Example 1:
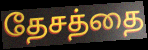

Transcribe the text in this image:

தேசத்தை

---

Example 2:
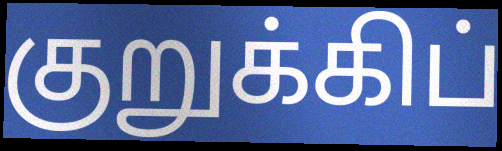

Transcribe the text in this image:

குறுக்கிப்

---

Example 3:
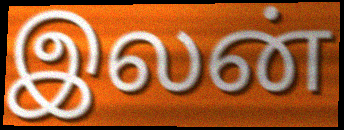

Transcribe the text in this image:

இலன்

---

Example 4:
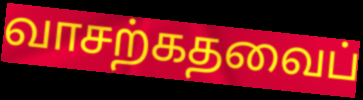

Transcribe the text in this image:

வாசற்கதவைப்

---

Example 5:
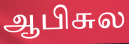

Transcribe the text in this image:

ஆபிசுல